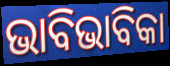
ଭାବିଭାବିକା